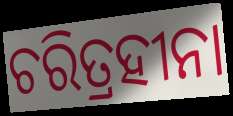
ଚରିତ୍ରହୀନା